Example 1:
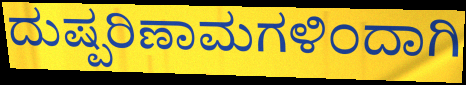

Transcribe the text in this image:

ದುಷ್ಪರಿಣಾಮಗಳಿಂದಾಗಿ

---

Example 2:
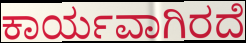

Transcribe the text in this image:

ಕಾರ್ಯವಾಗಿರದೆ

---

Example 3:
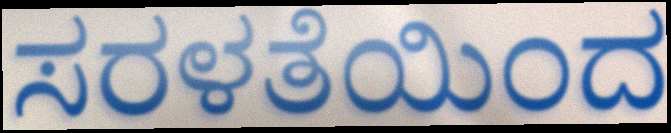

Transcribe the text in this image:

ಸರಳತೆಯಿಂದ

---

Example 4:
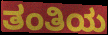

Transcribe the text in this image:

ತಂತಿಯ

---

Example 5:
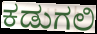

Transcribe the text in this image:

ಕಡುಗಲಿ